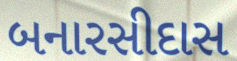
બનારસીદાસ